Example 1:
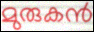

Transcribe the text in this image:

മുരുകൻ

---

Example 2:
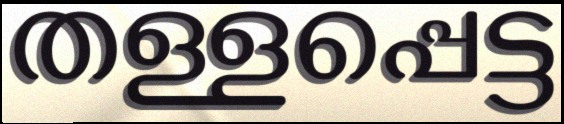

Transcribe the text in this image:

തള്ളപ്പെട്ട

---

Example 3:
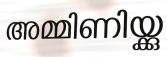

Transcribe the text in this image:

അമ്മിണിയ്ക്കു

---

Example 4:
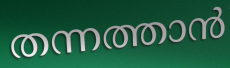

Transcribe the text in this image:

തന്നത്താൻ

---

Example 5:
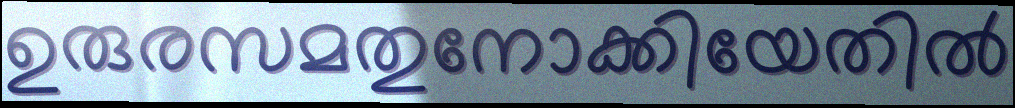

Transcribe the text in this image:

ഉരുരസമതുനോക്കിയേതിൽ